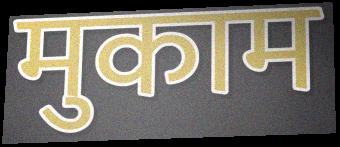
मुकाम